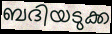
ബദിയടുക്ക